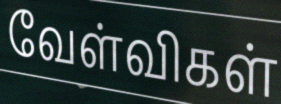
வேள்விகள்